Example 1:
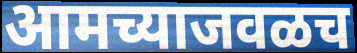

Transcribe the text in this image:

आमच्याजवळच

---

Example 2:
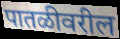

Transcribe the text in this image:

पातळीवरील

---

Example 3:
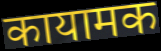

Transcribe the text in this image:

कायामक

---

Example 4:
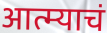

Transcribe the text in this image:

आत्म्याचं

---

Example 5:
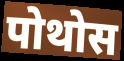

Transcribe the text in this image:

पोथोस